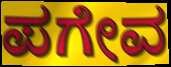
ಪಗೇವ